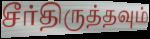
சீர்திருத்தவும்